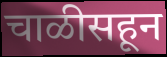
चाळीसहून